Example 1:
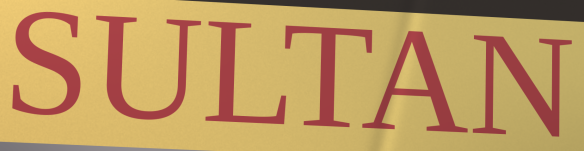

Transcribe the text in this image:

SULTAN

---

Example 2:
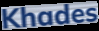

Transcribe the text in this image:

Khades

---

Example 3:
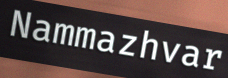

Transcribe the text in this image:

Nammazhvar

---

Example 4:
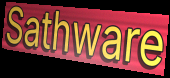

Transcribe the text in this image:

Sathware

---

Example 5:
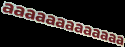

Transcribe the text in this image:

aaaaaaaaaaaaa